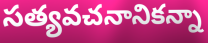
సత్యవచనానికన్నా